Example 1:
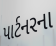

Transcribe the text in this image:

પાર્ટનરના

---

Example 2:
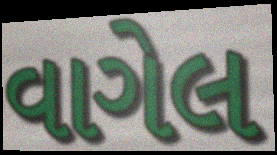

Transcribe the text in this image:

વાગેલ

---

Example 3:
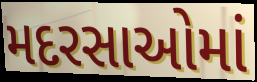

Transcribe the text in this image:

મદરસાઓમાં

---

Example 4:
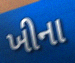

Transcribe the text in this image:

ખીના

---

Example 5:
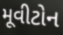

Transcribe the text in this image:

મૂવીટોન